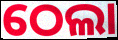
ଠେଲା